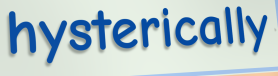
hysterically